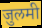
जुलमी